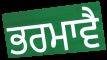
ਭਰਮਾਵੈ